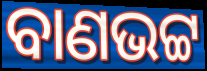
ବାଣଭଟ୍ଟ